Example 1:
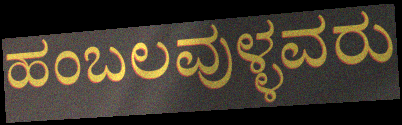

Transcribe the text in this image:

ಹಂಬಲವುಳ್ಳವರು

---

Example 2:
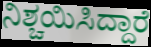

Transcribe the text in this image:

ನಿಶ್ಚಯಿಸಿದ್ದಾರೆ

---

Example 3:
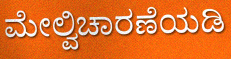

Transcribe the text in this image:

ಮೇಲ್ವಿಚಾರಣೆಯಡಿ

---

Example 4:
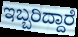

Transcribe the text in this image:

ಇಬ್ಬರಿದ್ದಾರೆ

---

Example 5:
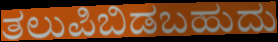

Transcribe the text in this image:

ತಲುಪಿಬಿಡಬಹುದು